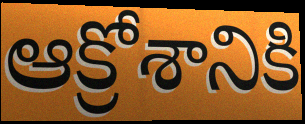
ఆక్రోశానికి